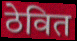
ठेवित